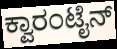
ಕ್ವಾರಂಟೈನ್